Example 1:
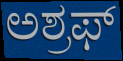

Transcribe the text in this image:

ಅಶ್ರಫ್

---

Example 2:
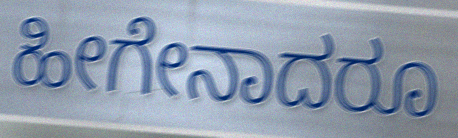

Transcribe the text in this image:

ಹೀಗೇನಾದರೂ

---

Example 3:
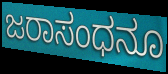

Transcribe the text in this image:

ಜರಾಸಂಧನೂ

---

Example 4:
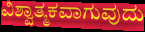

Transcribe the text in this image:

ವಿಶ್ವಾತ್ಮಕವಾಗುವುದು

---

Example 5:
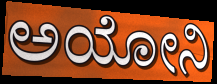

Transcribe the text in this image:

ಅಯೋನಿ